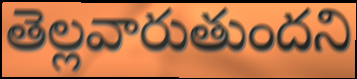
తెల్లవారుతుందని